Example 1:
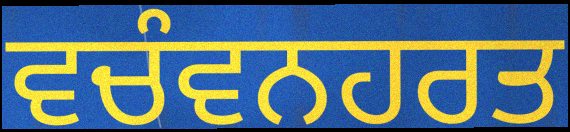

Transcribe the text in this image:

ਵਚੰਵਨਹਰਤ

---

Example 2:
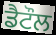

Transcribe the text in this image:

ਡੈਟੌਲ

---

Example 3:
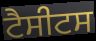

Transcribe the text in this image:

ਟੈਸੀਟਸ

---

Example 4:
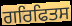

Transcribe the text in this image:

ਗਰਿਫਿਤਸ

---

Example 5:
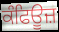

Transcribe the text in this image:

ਕੰਫਿਊਜ਼